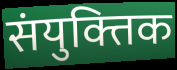
संयुक्तिक